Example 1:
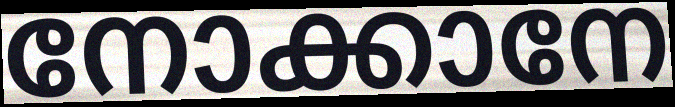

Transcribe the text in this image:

നോക്കാനേ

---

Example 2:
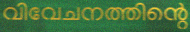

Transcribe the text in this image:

വിവേചനത്തിന്റെ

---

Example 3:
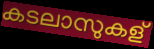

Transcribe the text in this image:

കടലാസുകള്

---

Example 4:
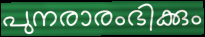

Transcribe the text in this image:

പുനരാരംഭിക്കും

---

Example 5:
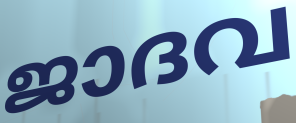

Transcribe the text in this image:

ജാദവ